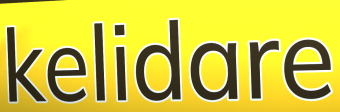
kelidare